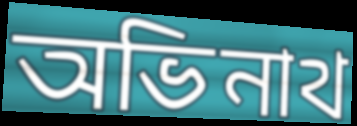
অভিনাথ